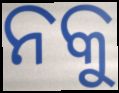
ନକୁ